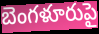
బెంగళూరుపై